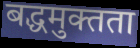
बद्धमुक्तता